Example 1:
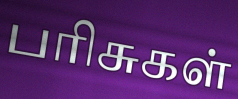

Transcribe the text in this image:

பரிசுகள்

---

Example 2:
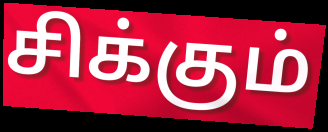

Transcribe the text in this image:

சிக்கும்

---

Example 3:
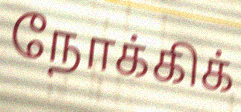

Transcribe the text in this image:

நோக்கிக்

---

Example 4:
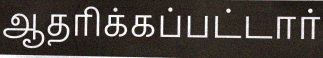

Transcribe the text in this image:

ஆதரிக்கப்பட்டார்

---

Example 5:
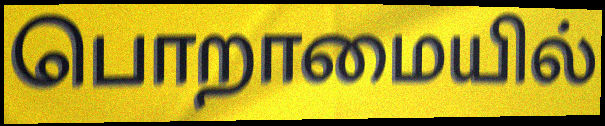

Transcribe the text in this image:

பொறாமையில்